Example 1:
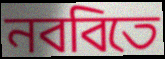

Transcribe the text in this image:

নববিতে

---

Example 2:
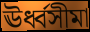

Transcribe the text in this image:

ঊর্ধ্বসীমা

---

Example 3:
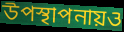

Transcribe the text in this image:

উপস্থাপনায়ও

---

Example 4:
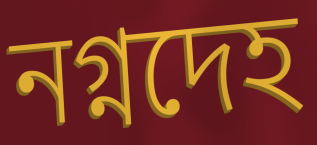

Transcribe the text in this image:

নগ্নদেহ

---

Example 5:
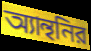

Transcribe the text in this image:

অ্যান্থনির